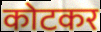
कोटकर